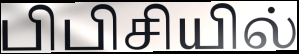
பிபிசியில்